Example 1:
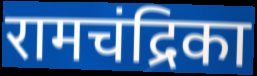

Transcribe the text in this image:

रामचंद्रिका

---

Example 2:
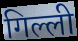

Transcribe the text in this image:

गिल्ली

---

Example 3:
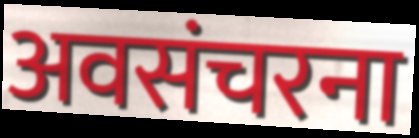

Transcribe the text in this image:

अवसंचरना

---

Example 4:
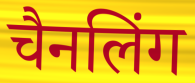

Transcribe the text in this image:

चैनलिंग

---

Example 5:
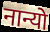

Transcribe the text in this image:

नान्यो